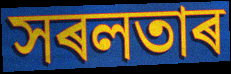
সৰলতাৰ